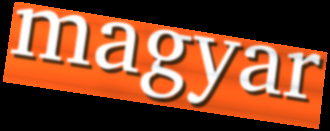
magyar